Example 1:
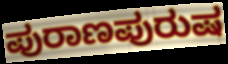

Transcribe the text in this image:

ಪುರಾಣಪುರುಷ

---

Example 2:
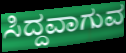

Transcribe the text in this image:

ಸಿದ್ದವಾಗುವ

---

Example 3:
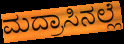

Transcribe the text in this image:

ಮದ್ರಾಸಿನಲ್ಲೆ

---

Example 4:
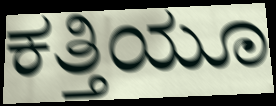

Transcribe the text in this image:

ಕತ್ತಿಯೂ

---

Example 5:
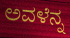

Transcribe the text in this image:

ಅವಳೆನ್ನ